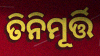
ତିନିମୂର୍ତ୍ତି